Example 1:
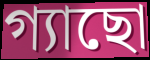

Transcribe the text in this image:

গ্যাছো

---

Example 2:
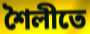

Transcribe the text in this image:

শৈলীতে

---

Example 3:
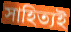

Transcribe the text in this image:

সাহিত্যই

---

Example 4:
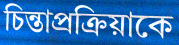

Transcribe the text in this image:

চিন্তাপ্রক্রিয়াকে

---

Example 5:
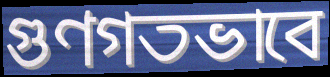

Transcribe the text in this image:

গুণগতভাবে